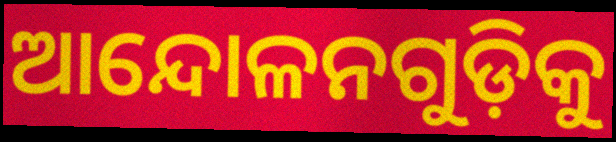
ଆନ୍ଦୋଳନଗୁଡ଼ିକୁ